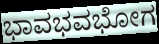
ಭಾವಭವಭೋಗ